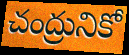
చంద్రునికో